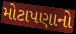
મોટાપણાનો